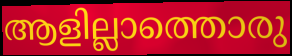
ആളില്ലാത്തൊരു